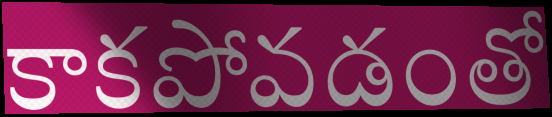
కాకపోవడంతో